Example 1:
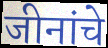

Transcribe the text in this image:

जीनांचे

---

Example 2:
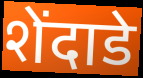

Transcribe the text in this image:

शेंदाडे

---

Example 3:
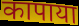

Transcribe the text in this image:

कापाया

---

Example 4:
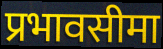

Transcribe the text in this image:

प्रभावसीमा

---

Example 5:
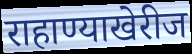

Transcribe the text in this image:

राहाण्याखेरीज